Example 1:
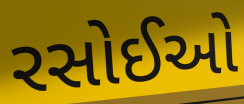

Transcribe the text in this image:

રસોઈઓ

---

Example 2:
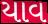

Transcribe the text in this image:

યાવ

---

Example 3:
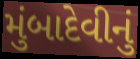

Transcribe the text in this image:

મુંબાદેવીનું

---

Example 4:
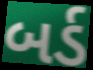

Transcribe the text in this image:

બર્ડ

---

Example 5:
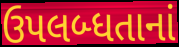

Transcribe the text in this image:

ઉપલબ્ધતાનાં